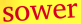
sower